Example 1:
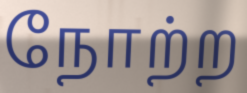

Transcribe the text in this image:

நோற்ற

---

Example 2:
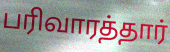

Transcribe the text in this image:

பரிவாரத்தார்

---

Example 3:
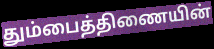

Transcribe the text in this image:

தும்பைத்திணையின்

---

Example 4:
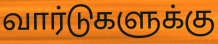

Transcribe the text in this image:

வார்டுகளுக்கு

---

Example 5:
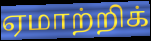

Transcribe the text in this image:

ஏமாற்றிக்